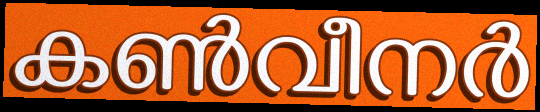
കൺവീനർ